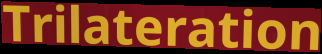
Trilateration